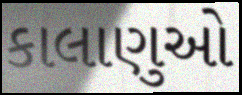
કાલાણુઓ